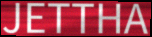
JETTHA